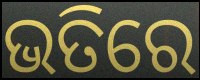
ଭତିରେ